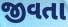
જીવતા